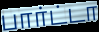
பார்ட்டா